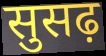
सुसढ़